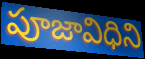
పూజావిధిని